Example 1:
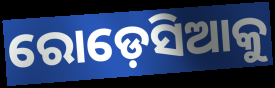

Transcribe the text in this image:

ରୋଡ଼େସିଆକୁ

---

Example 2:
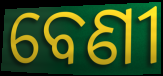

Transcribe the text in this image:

ବେଣୀ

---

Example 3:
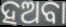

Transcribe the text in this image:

ହଅବା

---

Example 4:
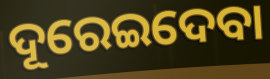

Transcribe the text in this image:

ଦୂରେଇଦେବା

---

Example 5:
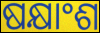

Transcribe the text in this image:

ଷକ୍ଷାଂଶ